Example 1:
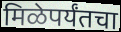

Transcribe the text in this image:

मिळेपर्यंतचा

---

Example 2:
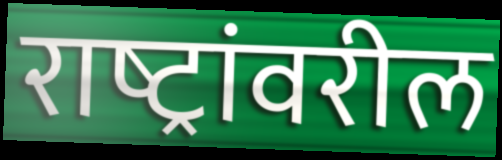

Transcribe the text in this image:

राष्ट्रांवरील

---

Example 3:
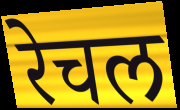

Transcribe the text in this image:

रेचल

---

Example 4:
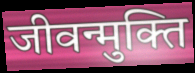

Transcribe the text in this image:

जीवन्मुक्ति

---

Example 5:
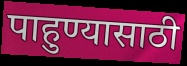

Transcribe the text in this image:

पाहुण्यासाठी